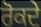
ਰੋਕਦੇ